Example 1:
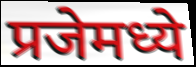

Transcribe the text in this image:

प्रजेमध्ये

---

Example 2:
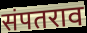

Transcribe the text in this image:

संपतराव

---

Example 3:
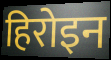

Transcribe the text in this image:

हिरोइन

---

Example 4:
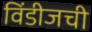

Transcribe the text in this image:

विंडीजची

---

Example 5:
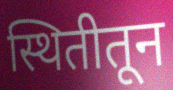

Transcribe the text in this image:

स्थितीतून